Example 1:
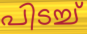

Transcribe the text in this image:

പിടച്ച്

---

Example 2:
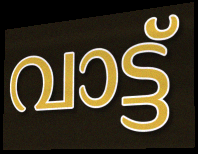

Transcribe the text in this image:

വാട്ട്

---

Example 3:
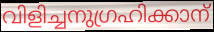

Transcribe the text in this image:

വിളിച്ചനുഗ്രഹിക്കാന്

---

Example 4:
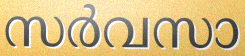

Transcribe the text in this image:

സർവസാ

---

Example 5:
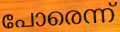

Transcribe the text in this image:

പോരെന്ന്